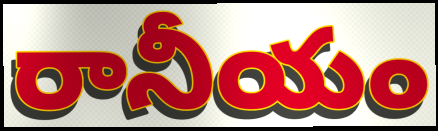
రానీయం